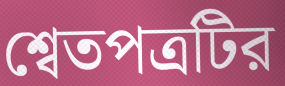
শ্বেতপত্রটির